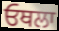
ਓਥਲਾ